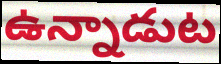
ఉన్నాడుట